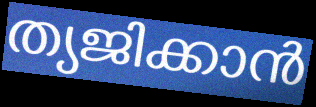
ത്യജിക്കാൻ